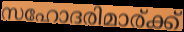
സഹോദരിമാര്ക്ക്